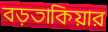
বড়তাকিয়ার